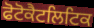
ਫੋਟੋਕੈਟਲਿਟਿਕ